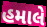
હમાલે